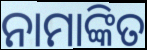
ନାମାଙ୍କିତ